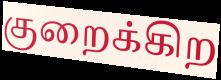
குறைக்கிற